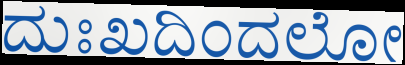
ದುಃಖದಿಂದಲೋ